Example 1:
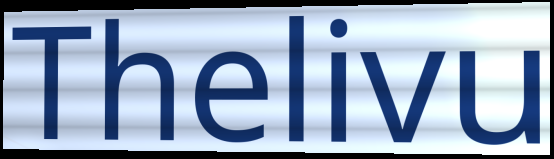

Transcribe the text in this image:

Thelivu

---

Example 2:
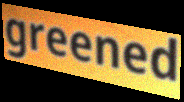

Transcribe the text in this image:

greened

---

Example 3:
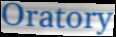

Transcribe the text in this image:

Oratory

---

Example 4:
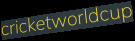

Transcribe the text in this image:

cricketworldcup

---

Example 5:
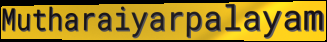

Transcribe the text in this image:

Mutharaiyarpalayam